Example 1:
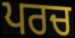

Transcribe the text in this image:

ਪਰਚ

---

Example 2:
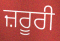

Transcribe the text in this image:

ਜ਼ਰੂਰੀ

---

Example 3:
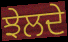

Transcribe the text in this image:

ਝੇਲਦੇ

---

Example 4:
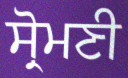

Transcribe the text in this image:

ਸ੍ਰੋਮਣੀ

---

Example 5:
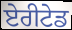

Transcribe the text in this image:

ਏਰੀਟੇਡ